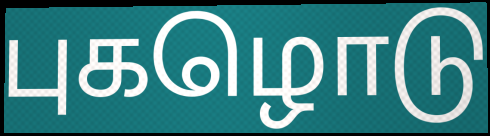
புகழொடு